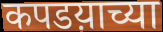
कपडय़ाच्या